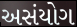
અસંયોગ